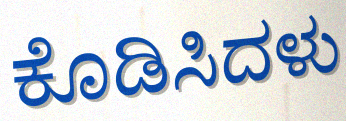
ಕೊಡಿಸಿದಳು